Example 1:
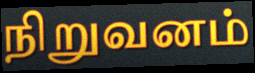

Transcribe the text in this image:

நிறுவனம்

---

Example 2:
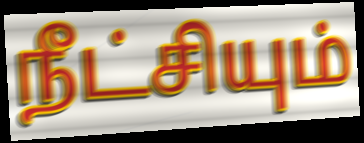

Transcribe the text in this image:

நீட்சியும்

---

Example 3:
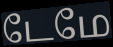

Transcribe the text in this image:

டேமே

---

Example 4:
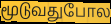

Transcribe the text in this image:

மூடுவதுபோல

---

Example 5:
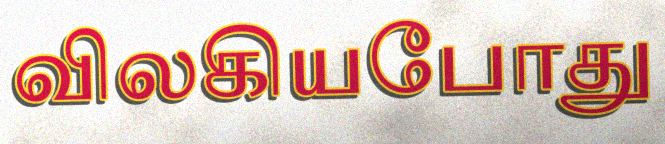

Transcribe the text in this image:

விலகியபோது